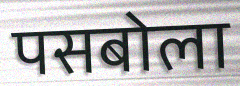
पसबोला